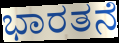
ಭಾರತನೆ